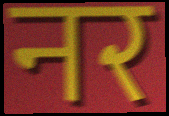
नर